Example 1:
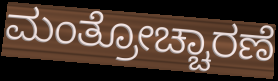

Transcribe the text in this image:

ಮಂತ್ರೋಚ್ಚಾರಣೆ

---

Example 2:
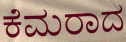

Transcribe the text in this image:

ಕೆಮರಾದ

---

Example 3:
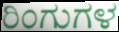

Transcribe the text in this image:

ರಿಂಗುಗಳ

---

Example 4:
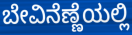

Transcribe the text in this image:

ಬೇವಿನೆಣ್ಣೆಯಲ್ಲಿ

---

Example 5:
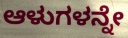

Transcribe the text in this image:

ಆಳುಗಳನ್ನೇ